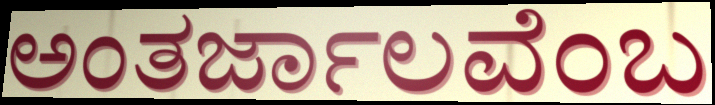
ಅಂತರ್ಜಾಲವೆಂಬ